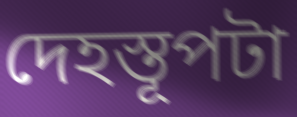
দেহস্তূপটা